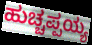
ಹುಚ್ಚಪ್ಪಯ್ಯ